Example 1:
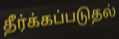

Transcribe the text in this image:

தீர்க்கப்படுதல்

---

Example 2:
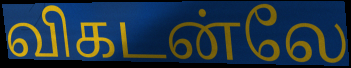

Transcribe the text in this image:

விகடன்லே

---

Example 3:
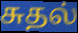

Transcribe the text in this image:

சுதல்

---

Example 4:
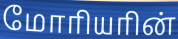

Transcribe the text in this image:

மோரியரின்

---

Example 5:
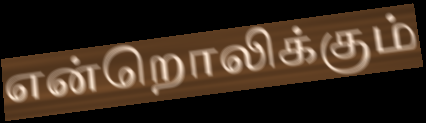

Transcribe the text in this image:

என்றொலிக்கும்